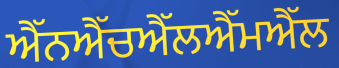
ਐੱਨਐੱਚਐੱਲਐੱਮਐੱਲ